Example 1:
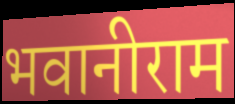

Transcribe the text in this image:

भवानीराम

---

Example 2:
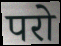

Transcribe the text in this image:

परो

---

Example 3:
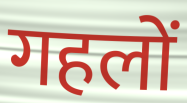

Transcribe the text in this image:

गहलों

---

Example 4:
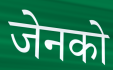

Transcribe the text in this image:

जेनको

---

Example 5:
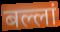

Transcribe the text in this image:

बल्लां